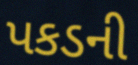
પકડની